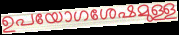
ഉപയോഗശേഷമുള്ള